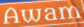
Awam